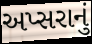
અપ્સરાનું